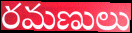
రమణులు